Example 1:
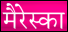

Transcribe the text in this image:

मैरेस्का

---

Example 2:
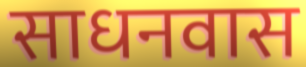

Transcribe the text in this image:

साधनवास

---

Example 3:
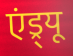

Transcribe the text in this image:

एंड्र्यू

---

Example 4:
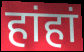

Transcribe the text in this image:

हांहां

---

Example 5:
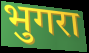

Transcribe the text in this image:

भुगरा